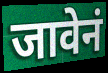
जावेनं